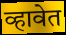
व्हावेत